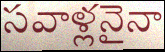
సవాళ్లనైనా